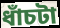
ধাঁচটা